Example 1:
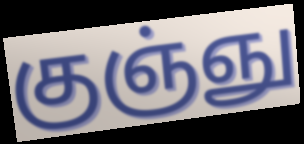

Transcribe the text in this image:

குஞ்ஞு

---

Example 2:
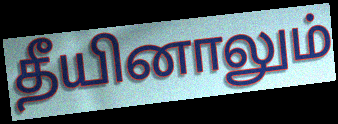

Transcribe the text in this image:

தீயினாலும்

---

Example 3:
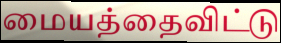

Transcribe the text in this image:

மையத்தைவிட்டு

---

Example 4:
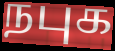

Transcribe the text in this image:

நபுக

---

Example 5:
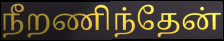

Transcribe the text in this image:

நீறணிந்தேன்